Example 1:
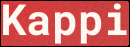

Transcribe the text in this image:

Kappi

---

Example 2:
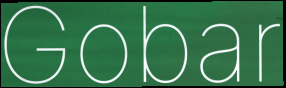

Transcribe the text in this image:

Gobar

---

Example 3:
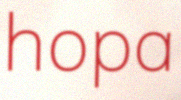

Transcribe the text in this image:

hopa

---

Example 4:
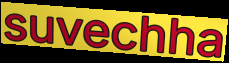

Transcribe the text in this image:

suvechha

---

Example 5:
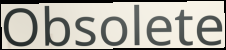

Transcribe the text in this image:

Obsolete